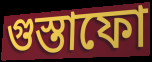
গুস্তাফো